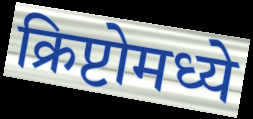
क्रिप्टोमध्ये